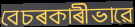
বেচৰকাৰীভাৱে